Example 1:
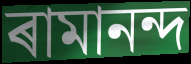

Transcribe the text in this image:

ৰামানন্দ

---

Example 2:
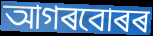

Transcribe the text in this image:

আগৰবোৰৰ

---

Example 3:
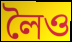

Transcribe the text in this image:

লৈও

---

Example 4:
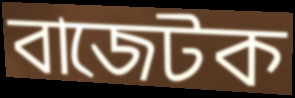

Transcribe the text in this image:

বাজেটক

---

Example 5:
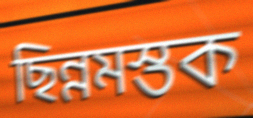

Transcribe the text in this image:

ছিন্নমস্তক